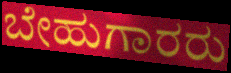
ಬೇಹುಗಾರರು